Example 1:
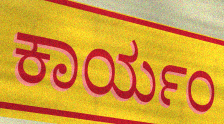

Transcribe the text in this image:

ಕಾರ್ಯಂ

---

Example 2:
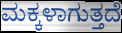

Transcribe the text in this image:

ಮಕ್ಕಳಾಗುತ್ತದೆ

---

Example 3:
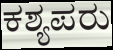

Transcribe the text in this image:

ಕಶ್ಯಪರು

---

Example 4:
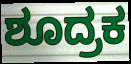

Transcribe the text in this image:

ಶೂದ್ರಕ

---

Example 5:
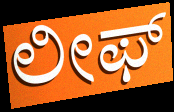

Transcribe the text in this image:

ಲೀಫ್